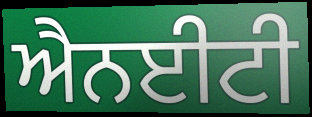
ਐਨਈਟੀ